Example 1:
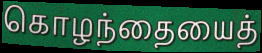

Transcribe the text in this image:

கொழந்தையைத்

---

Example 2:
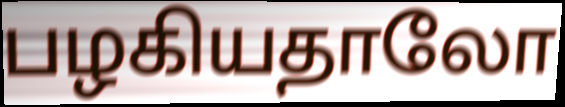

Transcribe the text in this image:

பழகியதாலோ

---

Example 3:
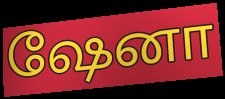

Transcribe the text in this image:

ஷேனா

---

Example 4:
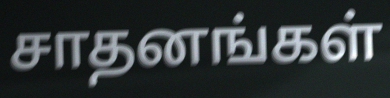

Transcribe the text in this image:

சாதனங்கள்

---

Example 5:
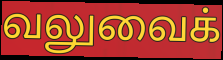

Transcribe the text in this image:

வலுவைக்